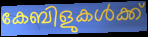
കേബിളുകൾക്ക്